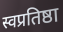
स्वप्रतिष्ठा